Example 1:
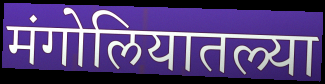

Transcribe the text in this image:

मंगोलियातल्या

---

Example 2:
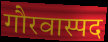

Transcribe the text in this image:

गौरवास्पद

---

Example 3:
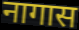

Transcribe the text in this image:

नागास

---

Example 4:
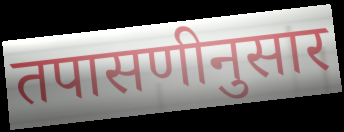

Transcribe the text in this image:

तपासणीनुसार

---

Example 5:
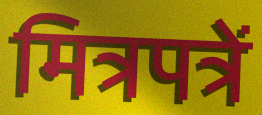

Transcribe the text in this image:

मित्रपत्रें